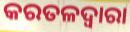
କରତଳଦ୍ୱାରା